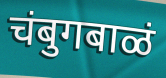
चंबुगबाळं